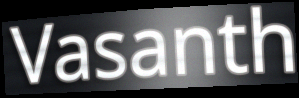
Vasanth